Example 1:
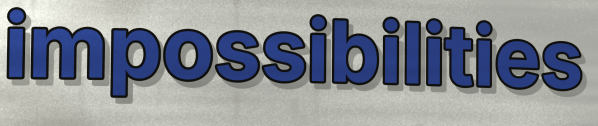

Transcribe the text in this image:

impossibilities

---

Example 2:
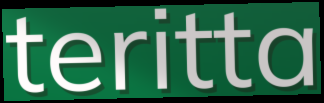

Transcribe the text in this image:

teritta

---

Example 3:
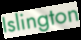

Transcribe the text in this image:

Islington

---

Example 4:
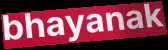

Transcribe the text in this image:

bhayanak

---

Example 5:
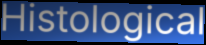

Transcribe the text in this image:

Histological